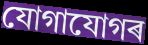
যোগাযোগৰ